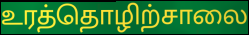
உரத்தொழிற்சாலை